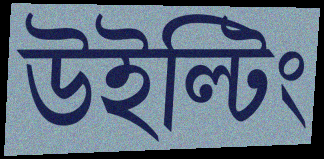
উইল্টিং